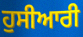
ਹੁਸੀਆਰੀ